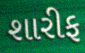
શારીફ